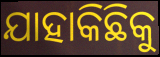
ଯାହାକିଛିକୁ